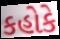
કહોકે